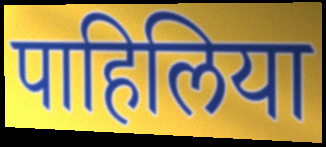
पाहिलिया